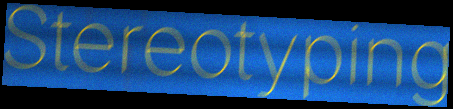
Stereotyping